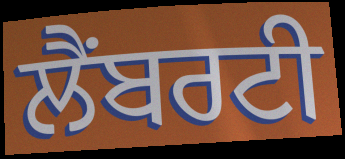
ਲੈਂਬਰਟੀ